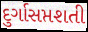
દુર્ગાસપ્તશતી